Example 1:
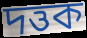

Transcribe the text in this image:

দত্তক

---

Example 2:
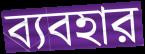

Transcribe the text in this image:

ব্যবহার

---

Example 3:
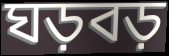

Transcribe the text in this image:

ঘড়বড়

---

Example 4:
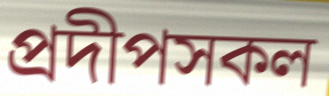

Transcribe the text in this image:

প্রদীপসকল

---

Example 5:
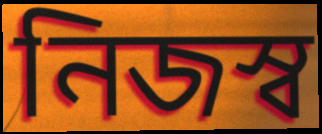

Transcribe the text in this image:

নিজস্ব